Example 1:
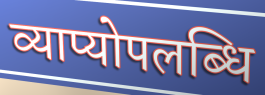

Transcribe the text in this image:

व्याप्योपलब्धि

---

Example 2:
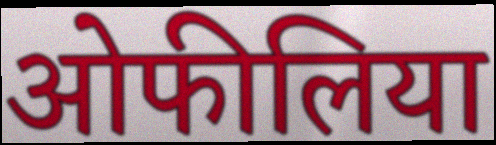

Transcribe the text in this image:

ओफीलिया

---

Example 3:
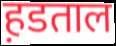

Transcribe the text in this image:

ह़डताल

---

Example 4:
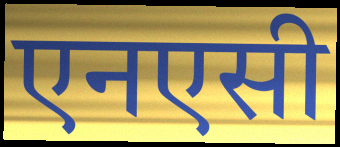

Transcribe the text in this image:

एनएसी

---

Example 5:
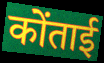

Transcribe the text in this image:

कोंताई